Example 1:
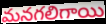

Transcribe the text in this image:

మనగలిగాయి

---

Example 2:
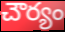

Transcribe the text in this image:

చౌర్యం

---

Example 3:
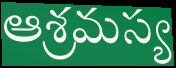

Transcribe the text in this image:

ఆశ్రమస్య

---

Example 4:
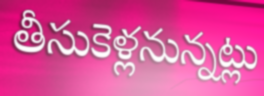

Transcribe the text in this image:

తీసుకెళ్లనున్నట్లు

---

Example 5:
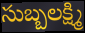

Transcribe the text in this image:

సుబ్బలక్ష్మి